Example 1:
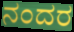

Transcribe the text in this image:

ನಂದರ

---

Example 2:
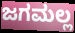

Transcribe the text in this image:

ಜಗಮಲ್ಲ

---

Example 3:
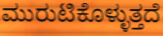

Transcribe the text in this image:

ಮುರುಟಿಕೊಳ್ಳುತ್ತದೆ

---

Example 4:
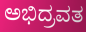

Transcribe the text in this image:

ಅಭಿದ್ರವತ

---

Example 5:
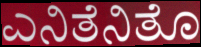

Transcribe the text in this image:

ಎನಿತೆನಿತೊ